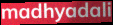
madhyadali